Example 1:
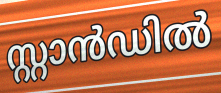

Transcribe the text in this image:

സ്റ്റാൻഡിൽ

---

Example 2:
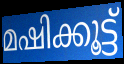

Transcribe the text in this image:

മഷിക്കൂട്ട്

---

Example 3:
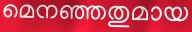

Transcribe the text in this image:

മെനഞ്ഞതുമായ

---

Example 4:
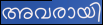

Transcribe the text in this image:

അവരായി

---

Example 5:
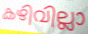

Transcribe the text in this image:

കഴിവില്ലാ